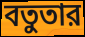
বতুতার